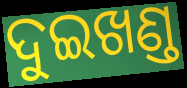
ଦୁଇଖଣ୍ଡ